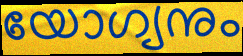
യോഗ്യനും